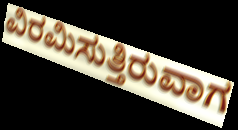
ವಿರಮಿಸುತ್ತಿರುವಾಗ